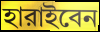
হারাইবেন